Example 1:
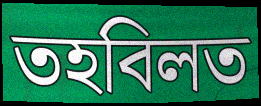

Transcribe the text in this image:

তহবিলত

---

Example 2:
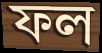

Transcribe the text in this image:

ফল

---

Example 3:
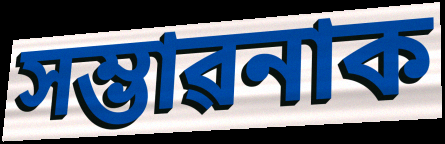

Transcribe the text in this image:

সম্ভাৱনাক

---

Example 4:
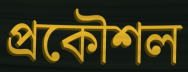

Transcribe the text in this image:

প্ৰকৌশল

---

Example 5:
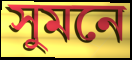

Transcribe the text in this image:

সুমনে